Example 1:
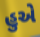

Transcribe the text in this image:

હુએ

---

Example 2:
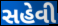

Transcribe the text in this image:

સહેવી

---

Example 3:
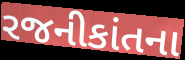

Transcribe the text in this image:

રજનીકાંતના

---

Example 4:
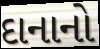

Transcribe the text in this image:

દાનાનો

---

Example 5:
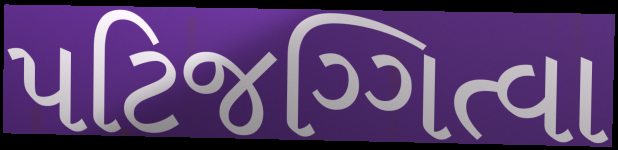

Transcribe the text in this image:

પટિજગ્ગિત્વા